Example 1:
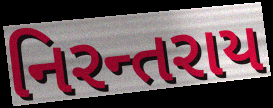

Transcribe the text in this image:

નિરન્તરાય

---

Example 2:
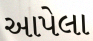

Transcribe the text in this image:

આપેલા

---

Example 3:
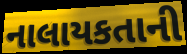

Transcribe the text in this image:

નાલાયકતાની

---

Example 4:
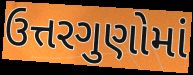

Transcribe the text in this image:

ઉત્તરગુણોમાં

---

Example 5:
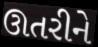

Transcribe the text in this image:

ઊતરીને